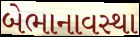
બેભાનાવસ્થા